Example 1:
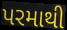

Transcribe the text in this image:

પરમાથી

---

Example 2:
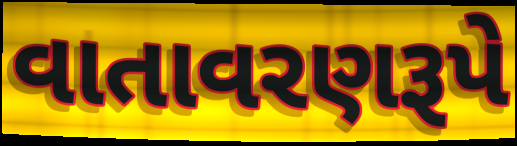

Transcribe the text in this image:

વાતાવરણરૂપે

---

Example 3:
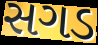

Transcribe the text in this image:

સગડ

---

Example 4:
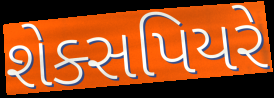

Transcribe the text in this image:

શેક્સપિયરે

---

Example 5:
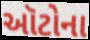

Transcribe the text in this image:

ઑટોના